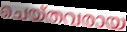
ചെയ്തവരായ